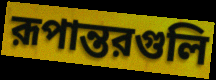
রূপান্তরগুলি